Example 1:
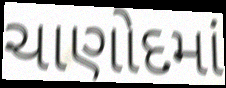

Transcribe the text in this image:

ચાણોદમાં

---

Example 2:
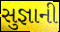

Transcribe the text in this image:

સુજ્ઞાની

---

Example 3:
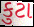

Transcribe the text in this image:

કુટા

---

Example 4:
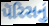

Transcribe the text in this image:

પૅરિસનું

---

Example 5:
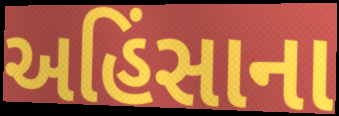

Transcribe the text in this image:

અહિંસાના